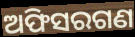
ଅଫିସରଗଣ